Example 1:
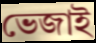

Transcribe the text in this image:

ভেজাই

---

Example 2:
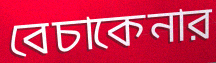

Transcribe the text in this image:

বেচাকেনার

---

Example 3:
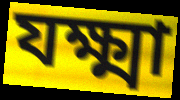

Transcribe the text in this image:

যক্ষ্মা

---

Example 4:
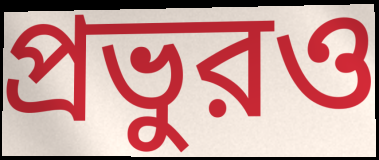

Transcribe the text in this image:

প্রভুরও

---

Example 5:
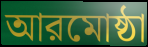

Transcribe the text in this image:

আরমোষ্ঠা